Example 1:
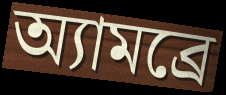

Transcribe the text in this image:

অ্যামব্রে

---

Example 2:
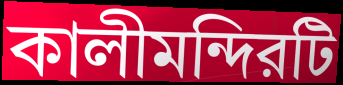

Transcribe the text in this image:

কালীমন্দিরটি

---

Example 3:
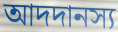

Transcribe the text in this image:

আদদানস্য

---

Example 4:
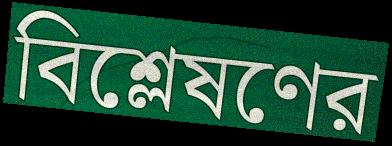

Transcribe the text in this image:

বিশ্লেষণের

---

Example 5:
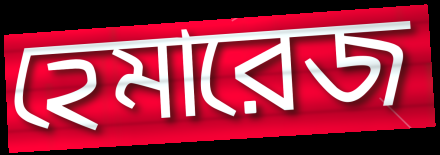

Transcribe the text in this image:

হেমারেজ